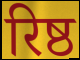
रिष्ठ